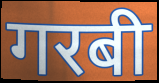
गरबी